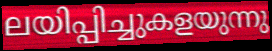
ലയിപ്പിച്ചുകളയുന്നു